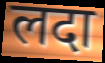
लदा